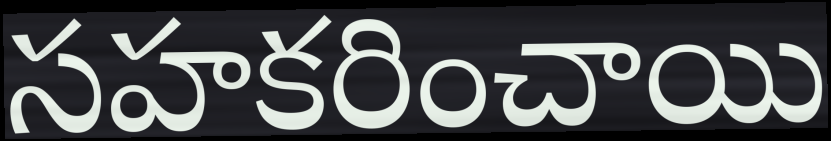
సహకరించాయి